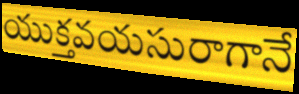
యుక్తవయసురాగానే